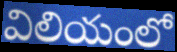
విలియంలో